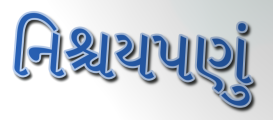
નિશ્ચયપણું